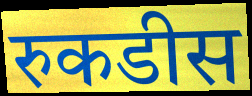
रुकडीस